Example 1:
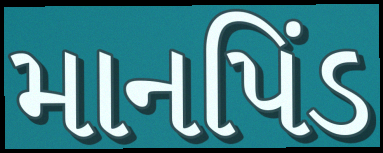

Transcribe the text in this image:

માનપિંડ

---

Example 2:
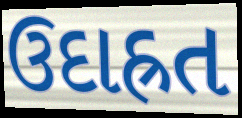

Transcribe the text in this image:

ઉદાહ્રત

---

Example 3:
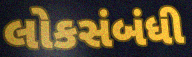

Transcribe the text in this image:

લોકસંબંધી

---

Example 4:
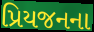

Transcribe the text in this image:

પ્રિયજનના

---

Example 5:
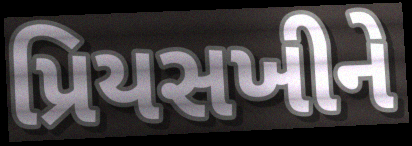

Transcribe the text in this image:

પ્રિયસખીને